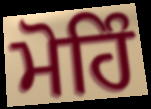
ਮੋਹਿੰ